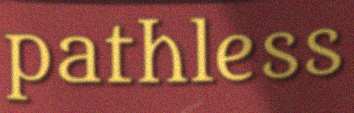
pathless